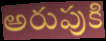
అరుపుకి